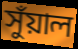
সুঁয়াল